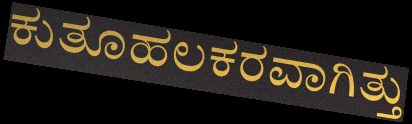
ಕುತೂಹಲಕರವಾಗಿತ್ತು